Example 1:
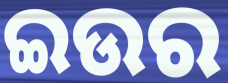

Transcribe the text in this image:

ଇଉର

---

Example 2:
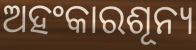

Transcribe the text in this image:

ଅହଂକାରଶୂନ୍ୟ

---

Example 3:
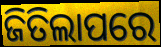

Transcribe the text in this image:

ଜିତିଲାପରେ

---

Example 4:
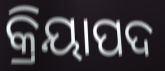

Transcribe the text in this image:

କ୍ରିୟାପଦ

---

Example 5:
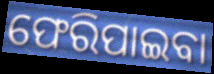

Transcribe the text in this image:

ଫେରିପାଇବା